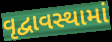
વૃદ્વાવસ્થામાં